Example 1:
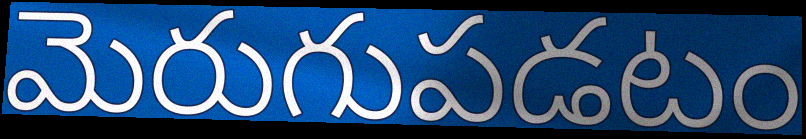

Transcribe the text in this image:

మెరుగుపడటం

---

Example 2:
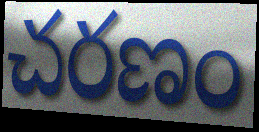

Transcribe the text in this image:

చరణం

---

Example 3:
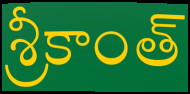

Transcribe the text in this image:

శ్రీకాంత్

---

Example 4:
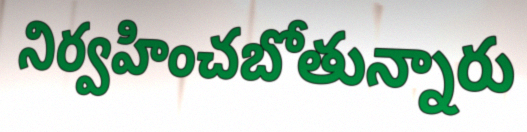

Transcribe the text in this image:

నిర్వహించబోతున్నారు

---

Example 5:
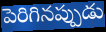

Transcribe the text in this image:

పెరిగినప్పుడు